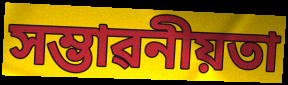
সম্ভাৱনীয়তা